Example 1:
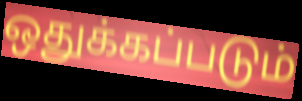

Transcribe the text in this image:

ஒதுக்கப்படும்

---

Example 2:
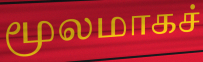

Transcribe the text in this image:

மூலமாகச்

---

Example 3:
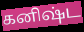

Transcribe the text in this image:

கனிஷ்ட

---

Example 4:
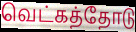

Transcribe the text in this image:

வெட்கத்தோடு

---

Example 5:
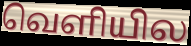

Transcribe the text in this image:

வெளியில